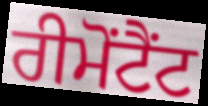
ਰੀਮੋਂਟੈਂਟ